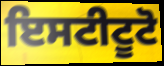
ਇਸਟੀਟੂਟੋ